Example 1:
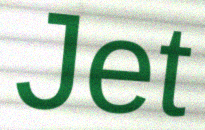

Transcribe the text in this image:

Jet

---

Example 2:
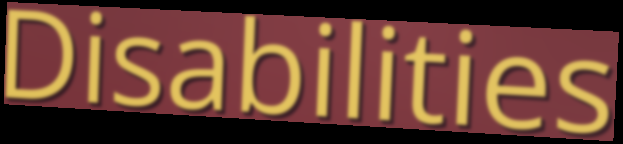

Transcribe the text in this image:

Disabilities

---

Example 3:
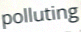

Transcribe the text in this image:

polluting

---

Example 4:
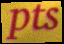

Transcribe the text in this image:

pts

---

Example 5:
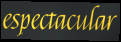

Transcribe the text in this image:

espectacular